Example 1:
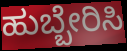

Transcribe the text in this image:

ಹುಬ್ಬೇರಿಸಿ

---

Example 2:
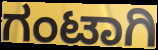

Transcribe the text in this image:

ಗಂಟಾಗಿ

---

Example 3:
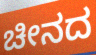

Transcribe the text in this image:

ಚೀನದ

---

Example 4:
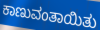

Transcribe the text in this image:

ಕಾಣುವಂತಾಯಿತು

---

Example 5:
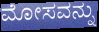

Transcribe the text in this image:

ಮೋಸವನ್ನು